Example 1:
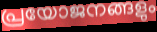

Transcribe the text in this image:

പ്രയോജനങ്ങളും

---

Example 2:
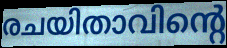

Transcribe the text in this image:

രചയിതാവിന്റെ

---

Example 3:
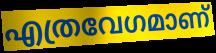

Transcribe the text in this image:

എത്രവേഗമാണ്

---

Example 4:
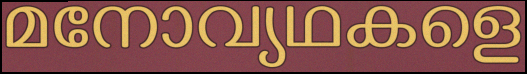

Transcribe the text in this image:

മനോവ്യഥകളെ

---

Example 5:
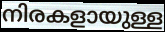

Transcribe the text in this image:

നിരകളായുള്ള